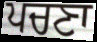
ਪਚਣਾ